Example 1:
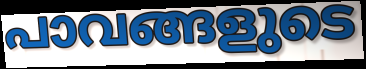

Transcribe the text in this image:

പാവങ്ങളുടെ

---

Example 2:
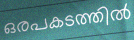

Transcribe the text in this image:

ഒരപകടത്തിൽ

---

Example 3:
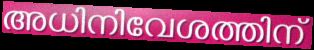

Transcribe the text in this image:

അധിനിവേശത്തിന്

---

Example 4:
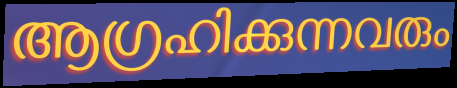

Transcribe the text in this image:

ആഗ്രഹിക്കുന്നവരും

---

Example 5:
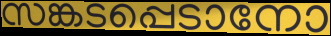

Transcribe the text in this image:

സങ്കടപ്പെടാനോ